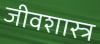
जीवशास्त्र